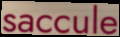
saccule